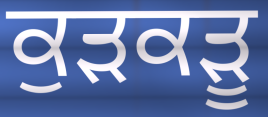
ਕੁੜਕੜੂ